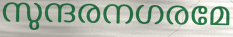
സുന്ദരനഗരമേ